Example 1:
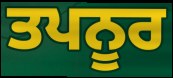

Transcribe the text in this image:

ਤਪਨੂਰ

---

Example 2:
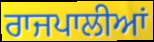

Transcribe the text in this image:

ਰਾਜਪਾਲੀਆਂ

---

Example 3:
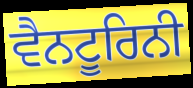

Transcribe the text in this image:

ਵੈਨਟੂਰਿਨੀ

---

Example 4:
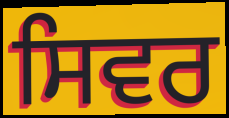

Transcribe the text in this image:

ਸਿਵਰ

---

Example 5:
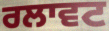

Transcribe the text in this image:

ਰਲਾਵਟ